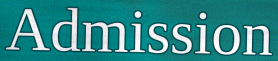
Admission